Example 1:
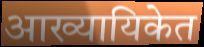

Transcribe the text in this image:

आख्यायिकेत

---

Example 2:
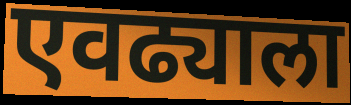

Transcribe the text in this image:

एवढ्याला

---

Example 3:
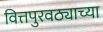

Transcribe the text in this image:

वित्तपुरवठ्याच्या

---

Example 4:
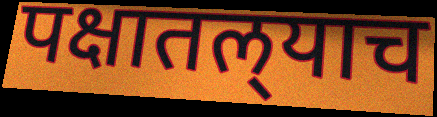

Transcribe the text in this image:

पक्षातल्याच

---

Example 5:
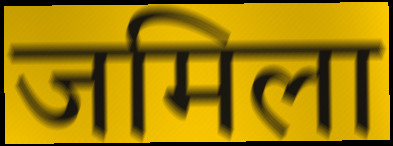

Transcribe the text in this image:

जमिला